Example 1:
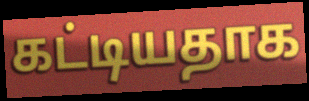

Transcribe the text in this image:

கட்டியதாக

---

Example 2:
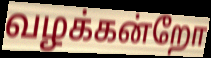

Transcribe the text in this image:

வழக்கன்றோ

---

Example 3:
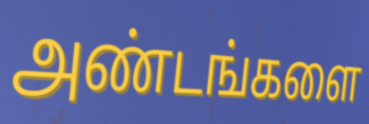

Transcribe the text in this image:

அண்டங்களை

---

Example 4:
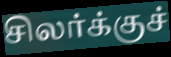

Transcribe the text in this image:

சிலர்க்குச்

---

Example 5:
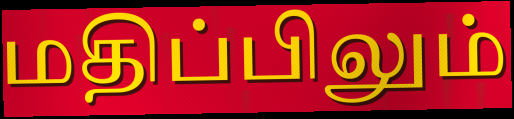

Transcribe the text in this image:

மதிப்பிலும்